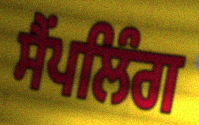
ਸੈਂਪਲਿੰਗ